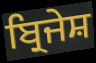
ਬ੍ਰਿਜੇਸ਼